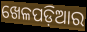
ଖେଳପଡ଼ିଆର